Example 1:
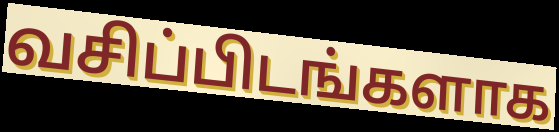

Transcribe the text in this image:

வசிப்பிடங்களாக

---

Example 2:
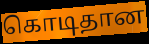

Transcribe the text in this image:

கொடிதான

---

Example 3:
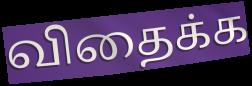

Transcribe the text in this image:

விதைக்க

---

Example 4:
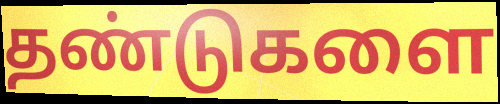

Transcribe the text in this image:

தண்டுகளை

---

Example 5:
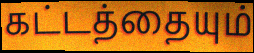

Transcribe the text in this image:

கட்டத்தையும்